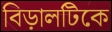
বিড়ালটিকে